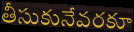
తీసుకునేవరకూ